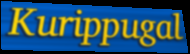
Kurippugal